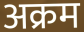
अक्रम